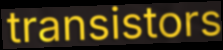
transistors